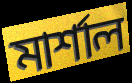
মাৰ্শাল